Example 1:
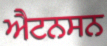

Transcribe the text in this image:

ਐਟਨਸਨ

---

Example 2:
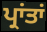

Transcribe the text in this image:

ਪ੍ਰਾਂਤਾਂ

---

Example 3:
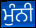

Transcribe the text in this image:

ਮੁੰਨੀ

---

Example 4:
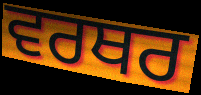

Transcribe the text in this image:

ਵਰਥਰ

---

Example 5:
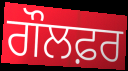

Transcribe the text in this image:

ਗੌਲਫ਼ਰ